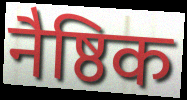
नैष्ठिक